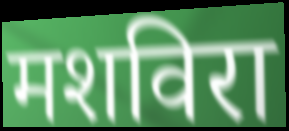
मशविरा